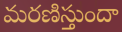
మరణిస్తుందా